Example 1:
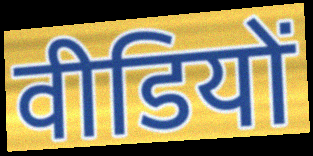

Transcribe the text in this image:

वीडियों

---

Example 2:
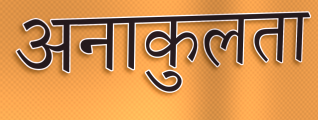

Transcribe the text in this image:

अनाकुलता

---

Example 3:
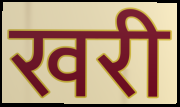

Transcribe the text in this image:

खरी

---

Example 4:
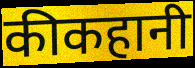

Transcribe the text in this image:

कीकहानी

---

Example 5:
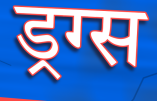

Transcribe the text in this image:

ड्रग्स